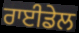
ਰਾਈਡੇਲ